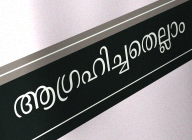
ആഗ്രഹിച്ചതെല്ലാം